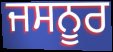
ਜਸਨੂਰ